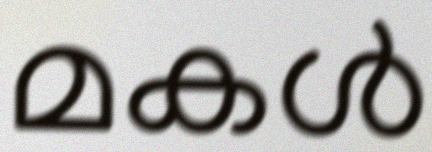
മകൾ